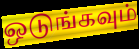
ஒடுங்கவும்